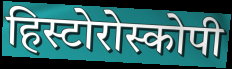
हिस्टोरोस्कोपी